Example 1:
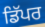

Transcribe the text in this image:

ਡਿੱਪਰ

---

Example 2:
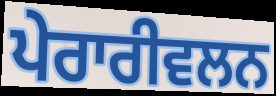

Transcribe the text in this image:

ਪੇਰਾਰੀਵਲਨ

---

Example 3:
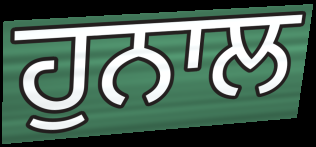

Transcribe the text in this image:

ਹੁਨਾਲ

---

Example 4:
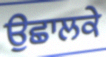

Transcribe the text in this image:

ਉਛਾਲਕੇ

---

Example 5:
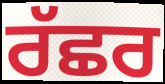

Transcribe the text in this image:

ਰੱਛਰ